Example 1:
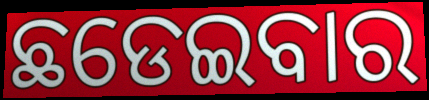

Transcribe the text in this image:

ଛଡେଇବାର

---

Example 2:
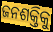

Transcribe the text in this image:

ଜନଶକ୍ତିକୁ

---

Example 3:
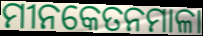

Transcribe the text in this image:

ମୀନକେତନମାଳା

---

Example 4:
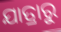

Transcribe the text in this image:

ଯାତ୍ରାରୁ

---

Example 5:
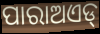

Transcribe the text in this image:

ପାରାଅଏଡ୍